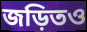
জড়িতও